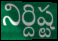
నిర్దిష్ట